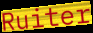
Ruiter